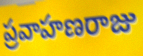
ప్రవాహణరాజు